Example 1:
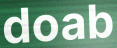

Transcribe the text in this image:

doab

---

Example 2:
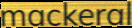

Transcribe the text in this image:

mackeral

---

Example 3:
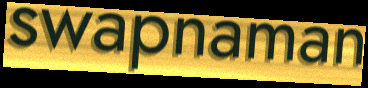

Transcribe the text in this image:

swapnaman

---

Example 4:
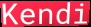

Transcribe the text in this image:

Kendi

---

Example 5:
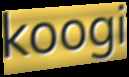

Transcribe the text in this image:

koogi